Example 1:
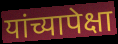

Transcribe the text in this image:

यांच्यापेक्षा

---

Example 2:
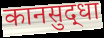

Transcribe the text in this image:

कानसुद्धा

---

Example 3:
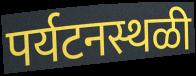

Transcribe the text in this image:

पर्यटनस्थळी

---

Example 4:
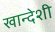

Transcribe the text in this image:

खान्देशी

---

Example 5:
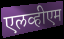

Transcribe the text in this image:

एलव्हीएम